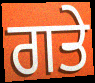
ਗਤੇ